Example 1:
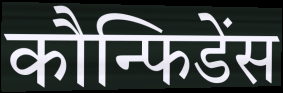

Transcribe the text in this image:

कौन्फिडेंस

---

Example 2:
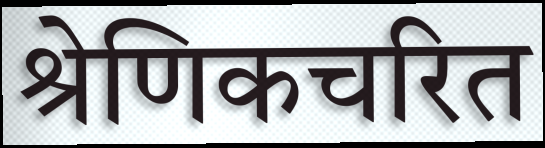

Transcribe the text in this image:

श्रेणिकचरित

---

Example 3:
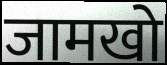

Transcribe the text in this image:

जामखो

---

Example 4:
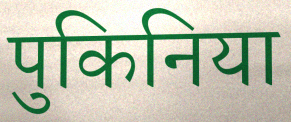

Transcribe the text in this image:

पुकिनिया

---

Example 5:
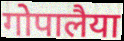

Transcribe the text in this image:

गोपालैया